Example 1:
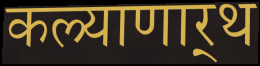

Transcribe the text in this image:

कल्याणार्थ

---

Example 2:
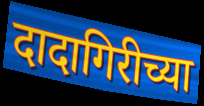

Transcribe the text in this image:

दादागिरीच्या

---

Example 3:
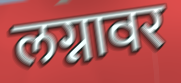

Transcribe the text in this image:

लग्नावर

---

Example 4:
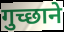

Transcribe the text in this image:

गुच्छाने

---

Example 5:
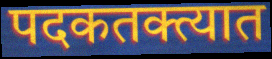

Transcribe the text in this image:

पदकतक्त्यात